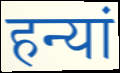
हन्यां